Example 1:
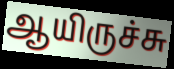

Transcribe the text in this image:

ஆயிருச்சு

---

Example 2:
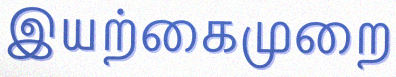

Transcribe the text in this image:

இயற்கைமுறை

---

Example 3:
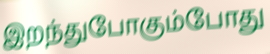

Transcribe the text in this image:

இறந்துபோகும்போது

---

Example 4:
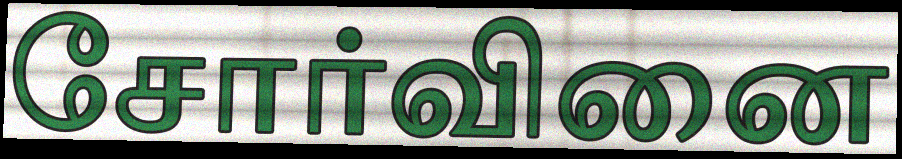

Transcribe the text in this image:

சோர்வினை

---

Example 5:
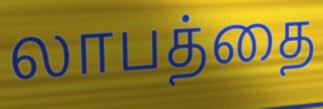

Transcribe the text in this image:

லாபத்தை